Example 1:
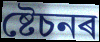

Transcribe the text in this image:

ষ্টেচনৰ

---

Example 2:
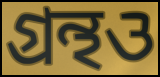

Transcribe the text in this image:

গ্ৰন্থও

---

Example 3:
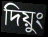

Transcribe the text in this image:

দিয়ুং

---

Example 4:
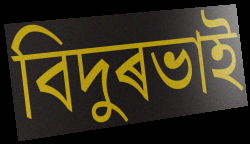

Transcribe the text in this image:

বিদুৰভাই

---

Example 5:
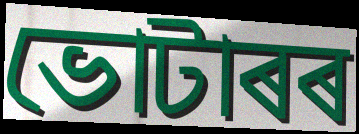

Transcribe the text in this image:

ভোটাৰৰ